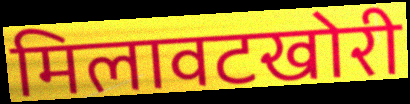
मिलावटखोरी